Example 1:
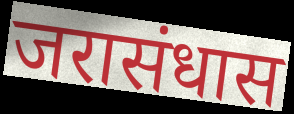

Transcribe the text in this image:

जरासंधास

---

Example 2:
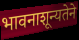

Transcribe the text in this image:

भावनाशून्यतेने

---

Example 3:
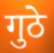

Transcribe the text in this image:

गुठे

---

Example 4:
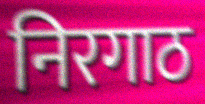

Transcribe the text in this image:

निरगाठ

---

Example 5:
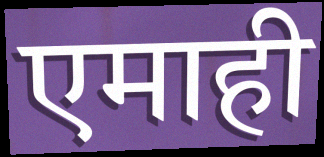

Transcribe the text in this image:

एमाही